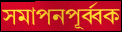
সমাপনপূর্ব্বক